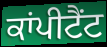
ਕਾਂਪੀਟੈਂਟ